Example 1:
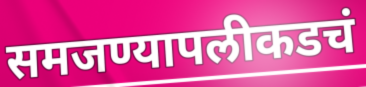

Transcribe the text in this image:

समजण्यापलीकडचं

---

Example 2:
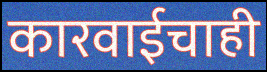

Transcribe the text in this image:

कारवाईचाही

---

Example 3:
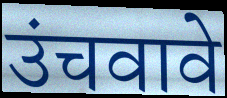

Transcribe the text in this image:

उंचवावे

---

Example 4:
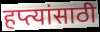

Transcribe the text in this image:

हप्त्यांसाठी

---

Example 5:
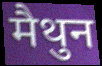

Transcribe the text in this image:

मैथुन